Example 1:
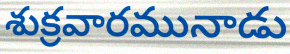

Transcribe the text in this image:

శుక్రవారమునాడు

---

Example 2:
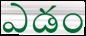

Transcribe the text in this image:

ఎడం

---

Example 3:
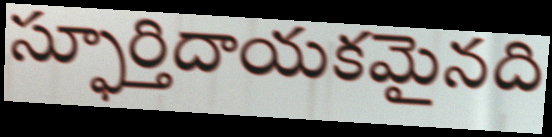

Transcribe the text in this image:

స్ఫూర్తిదాయకమైనది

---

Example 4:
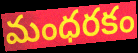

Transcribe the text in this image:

మంధరకం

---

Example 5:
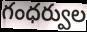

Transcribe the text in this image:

గంధర్వుల